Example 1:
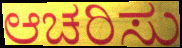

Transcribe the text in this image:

ಆಚರಿಸು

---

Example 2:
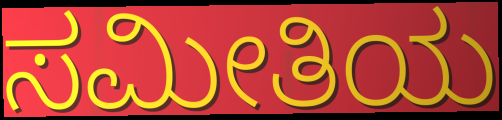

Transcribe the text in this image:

ಸಮೀತಿಯ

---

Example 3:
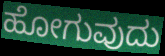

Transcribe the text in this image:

ಹೋಗುವುದು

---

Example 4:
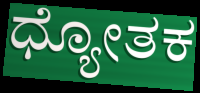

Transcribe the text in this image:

ಧ್ಯೋತಕ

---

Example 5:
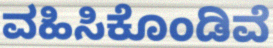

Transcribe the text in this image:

ವಹಿಸಿಕೊಂಡಿವೆ